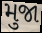
મુજા